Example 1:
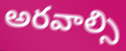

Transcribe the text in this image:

అరవాల్సి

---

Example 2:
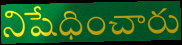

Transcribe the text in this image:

నిషేధించారు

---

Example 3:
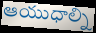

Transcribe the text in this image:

ఆయుధాల్ని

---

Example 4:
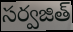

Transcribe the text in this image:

సర్వజిత్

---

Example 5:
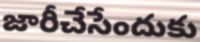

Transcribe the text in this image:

జారీచేసేందుకు